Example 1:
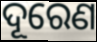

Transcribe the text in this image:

ଦୂରେଣ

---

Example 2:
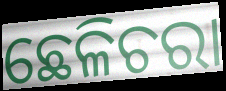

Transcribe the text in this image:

ଛେଳିଚରା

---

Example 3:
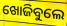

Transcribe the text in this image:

ଖୋଜିବୁଲେ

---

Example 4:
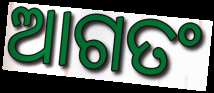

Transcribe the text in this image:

ଆଗତଂ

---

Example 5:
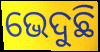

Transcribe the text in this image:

ଭେଦୁଛି